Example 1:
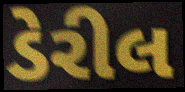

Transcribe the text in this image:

ડેરીલ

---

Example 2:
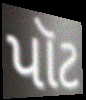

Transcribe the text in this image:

પૉટ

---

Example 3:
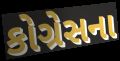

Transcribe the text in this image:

કોગ્રેસના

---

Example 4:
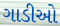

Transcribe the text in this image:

ગાડીઓ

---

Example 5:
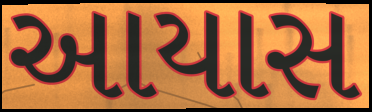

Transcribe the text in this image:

આયાસ